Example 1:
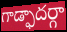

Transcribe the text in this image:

గాడ్ఫాదర్గా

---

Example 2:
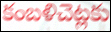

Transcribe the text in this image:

కంబళిచెట్లకు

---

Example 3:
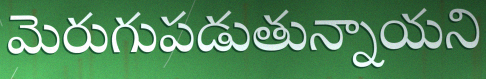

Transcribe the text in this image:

మెరుగుపడుతున్నాయని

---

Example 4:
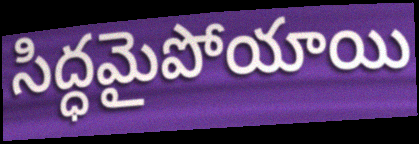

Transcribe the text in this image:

సిద్ధమైపోయాయి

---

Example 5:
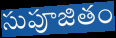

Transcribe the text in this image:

సుపూజితం